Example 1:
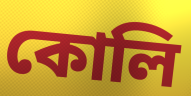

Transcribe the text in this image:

কোলি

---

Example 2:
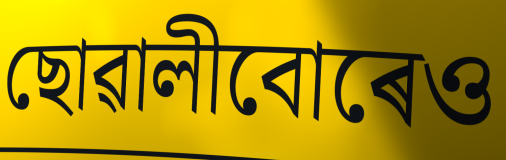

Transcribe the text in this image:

ছোৱালীবোৰেও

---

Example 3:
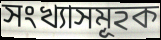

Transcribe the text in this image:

সংখ্যাসমূহক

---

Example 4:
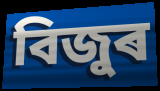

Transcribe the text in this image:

বিজুৰ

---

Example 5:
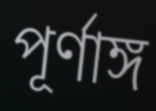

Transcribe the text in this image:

পূৰ্ণাঙ্গ